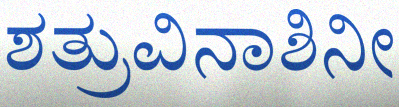
ಶತ್ರುವಿನಾಶಿನೀ